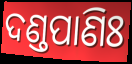
ଦଣ୍ଡପାଣିଃ